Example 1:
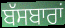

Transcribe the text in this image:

ਬੱਸਬਾਰਾਂ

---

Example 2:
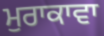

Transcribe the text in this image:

ਮੁਰਾਕਾਵਾ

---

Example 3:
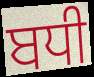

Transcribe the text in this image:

ਬਧੀ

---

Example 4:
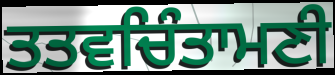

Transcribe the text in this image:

ਤਤਵਚਿੰਤਾਮਣੀ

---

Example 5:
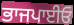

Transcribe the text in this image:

ਭਾਜਪਾਈਓ